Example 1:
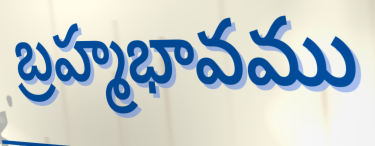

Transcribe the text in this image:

బ్రహ్మభావము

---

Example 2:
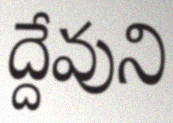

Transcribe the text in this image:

ద్దేవుని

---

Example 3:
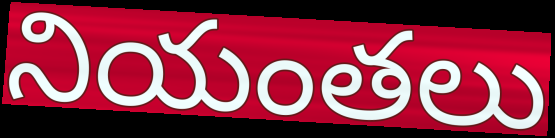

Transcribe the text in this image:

నియంతలు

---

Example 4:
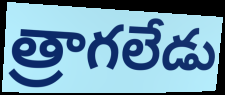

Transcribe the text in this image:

త్రాగలేడు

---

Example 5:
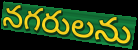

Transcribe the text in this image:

నగరులను